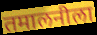
तमालनीला